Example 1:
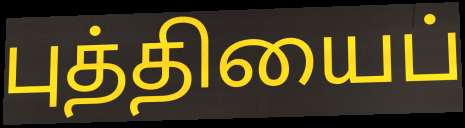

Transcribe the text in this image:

புத்தியைப்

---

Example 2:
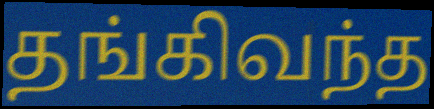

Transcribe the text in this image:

தங்கிவந்த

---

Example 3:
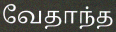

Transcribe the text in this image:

வேதாந்த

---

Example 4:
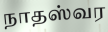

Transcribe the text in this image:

நாதஸ்வர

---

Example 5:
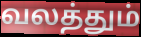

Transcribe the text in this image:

வலத்தும்